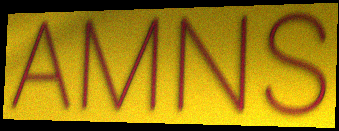
AMNS